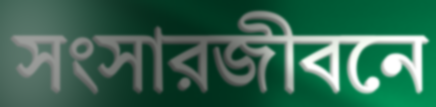
সংসারজীবনে